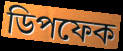
ডিপফেক